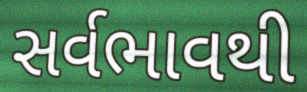
સર્વભાવથી